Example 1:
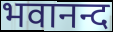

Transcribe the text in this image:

भवानन्द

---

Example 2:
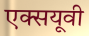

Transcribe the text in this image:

एक्सयूवी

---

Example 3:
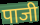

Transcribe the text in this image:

पाजी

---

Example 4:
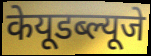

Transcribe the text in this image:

केयूडब्ल्यूजे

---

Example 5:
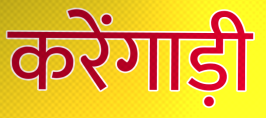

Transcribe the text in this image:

करेंगाड़ी